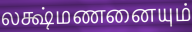
லக்ஷ்மணனையும்